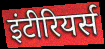
इंटीरियर्स